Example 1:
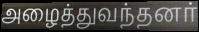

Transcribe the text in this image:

அழைத்துவந்தனர்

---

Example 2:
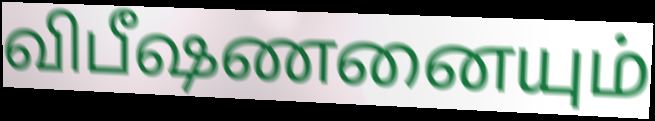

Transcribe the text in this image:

விபீஷணனையும்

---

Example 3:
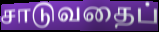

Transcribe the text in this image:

சாடுவதைப்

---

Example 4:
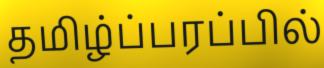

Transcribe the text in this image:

தமிழ்ப்பரப்பில்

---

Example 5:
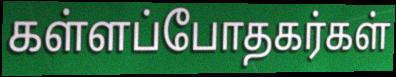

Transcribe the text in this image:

கள்ளப்போதகர்கள்